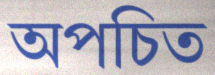
অপচিত